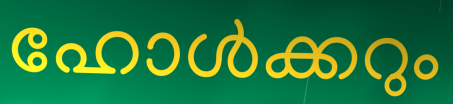
ഹോൾക്കറും